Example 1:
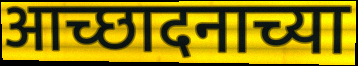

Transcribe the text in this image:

आच्छादनाच्या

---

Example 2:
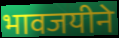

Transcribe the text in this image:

भावजयीने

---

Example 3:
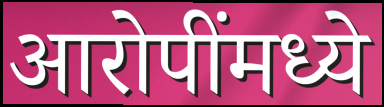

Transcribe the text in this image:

आरोपींमध्ये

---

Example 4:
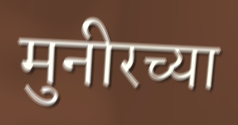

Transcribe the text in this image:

मुनीरच्या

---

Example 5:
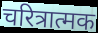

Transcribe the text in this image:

चरित्रात्मक